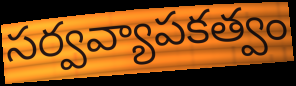
సర్వవ్యాపకత్వం